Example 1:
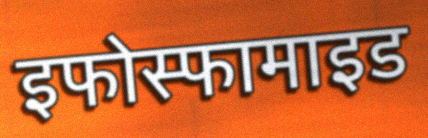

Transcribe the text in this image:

इफोस्फामाइड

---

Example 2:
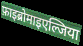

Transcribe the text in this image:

फ़ाइब्रोमाइएल्जिया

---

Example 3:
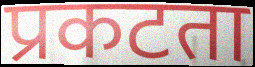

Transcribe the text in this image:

प्रकटता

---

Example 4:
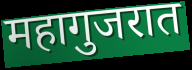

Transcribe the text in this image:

महागुजरात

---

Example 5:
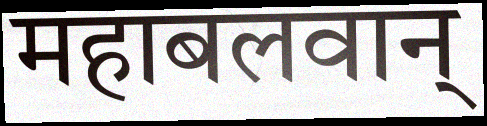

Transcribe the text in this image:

महाबलवान्